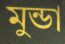
মুন্ডা